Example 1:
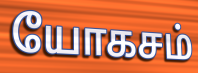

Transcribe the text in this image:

யோகசம்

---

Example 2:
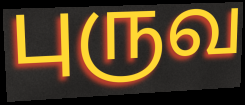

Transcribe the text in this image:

புருவ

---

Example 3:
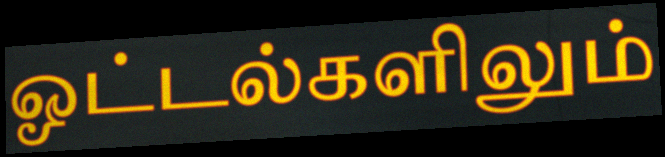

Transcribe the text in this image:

ஓட்டல்களிலும்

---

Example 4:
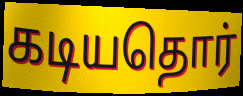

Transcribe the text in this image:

கடியதொர்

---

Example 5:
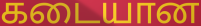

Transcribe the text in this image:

கடையான